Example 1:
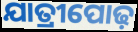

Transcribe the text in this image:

ଯାତ୍ରୀପୋଢ଼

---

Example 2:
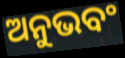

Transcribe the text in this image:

ଅନୁଭବଂ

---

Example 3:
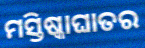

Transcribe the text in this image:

ମସ୍ତିଷ୍କାଘାତର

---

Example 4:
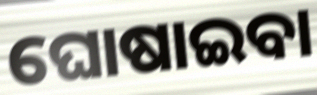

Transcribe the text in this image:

ଘୋଷାଇବା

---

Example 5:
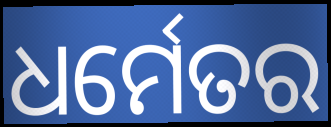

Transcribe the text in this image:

ଧର୍ମେତର